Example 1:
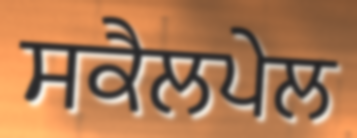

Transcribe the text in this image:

ਸਕੈਲਪੇਲ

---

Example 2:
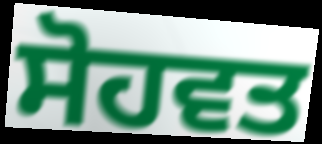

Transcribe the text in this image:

ਸੋਹਵਤ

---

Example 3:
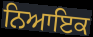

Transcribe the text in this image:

ਨਿਆਇਕ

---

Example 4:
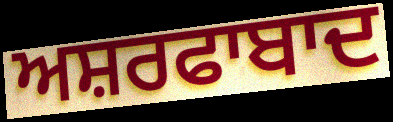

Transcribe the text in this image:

ਅਸ਼ਰਫਾਬਾਦ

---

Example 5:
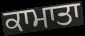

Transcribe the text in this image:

ਕਾਮਾਤਾ